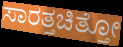
ಸಾರತ್ತಚಿತ್ತೋ